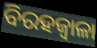
ବିରହଜ୍ୱାଳା